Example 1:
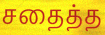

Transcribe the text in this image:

சதைத்த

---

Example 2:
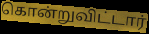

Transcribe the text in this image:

கொன்றுவிட்டார்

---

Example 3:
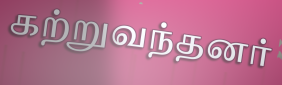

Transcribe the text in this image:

கற்றுவந்தனர்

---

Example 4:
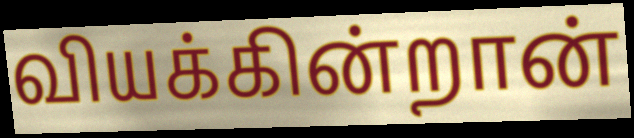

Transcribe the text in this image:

வியக்கின்றான்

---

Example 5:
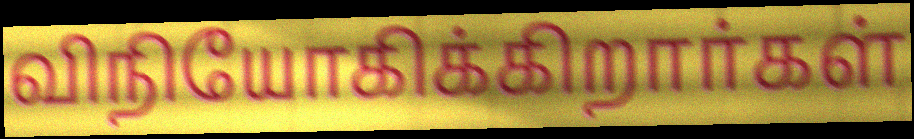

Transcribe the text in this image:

விநியோகிக்கிறார்கள்